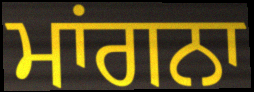
ਮਾਂਗਨਾ